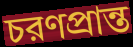
চরণপ্রান্ত